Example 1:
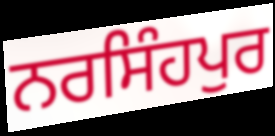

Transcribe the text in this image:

ਨਰਸਿੰਹਪੁਰ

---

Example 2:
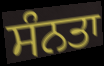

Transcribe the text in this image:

ਸੰਨਤਾ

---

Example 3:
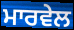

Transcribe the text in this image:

ਮਾਰਵੇਲ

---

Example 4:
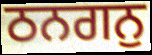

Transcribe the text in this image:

ਠਨਗਨੁ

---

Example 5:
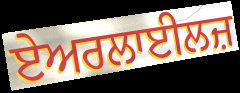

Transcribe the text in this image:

ਏਅਰਲਾਈਲਜ਼